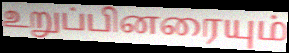
உறுப்பினரையும்